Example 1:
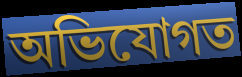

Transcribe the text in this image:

অভিযোগত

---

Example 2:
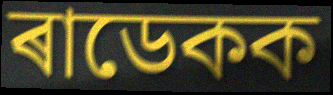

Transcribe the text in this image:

ৰাডেকক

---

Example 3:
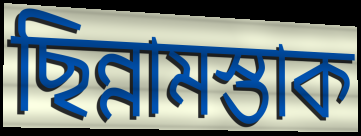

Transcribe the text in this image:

ছিন্নামস্তাক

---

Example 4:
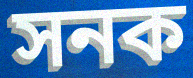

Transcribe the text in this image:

সনক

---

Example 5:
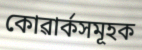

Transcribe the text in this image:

কোৱাৰ্কসমূহক